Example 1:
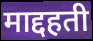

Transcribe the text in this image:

माद्दहती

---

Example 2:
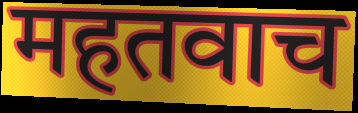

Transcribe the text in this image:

महतवाच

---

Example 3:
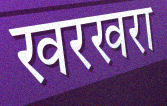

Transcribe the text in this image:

खरखरा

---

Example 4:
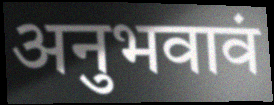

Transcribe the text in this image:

अनुभवावं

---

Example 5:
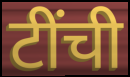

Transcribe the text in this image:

टींची